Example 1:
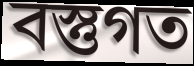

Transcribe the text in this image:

বস্তুগত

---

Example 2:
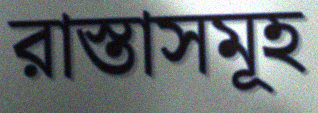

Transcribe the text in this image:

রাস্তাসমূহ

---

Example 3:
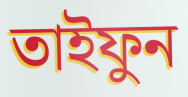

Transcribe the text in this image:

তাইফুন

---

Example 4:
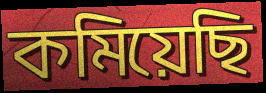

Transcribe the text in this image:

কমিয়েছি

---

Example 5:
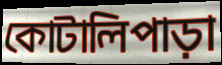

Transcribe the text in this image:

কোটালিপাড়া